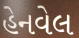
હેનવેલ